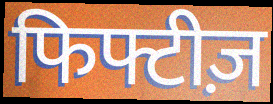
फिफ्टीज़